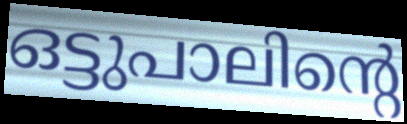
ഒട്ടുപാലിന്റെ